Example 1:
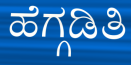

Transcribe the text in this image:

ಹೆಗ್ಗಡಿತಿ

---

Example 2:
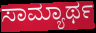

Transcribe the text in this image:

ಸಾಮ್ಯಾರ್ಥ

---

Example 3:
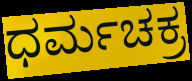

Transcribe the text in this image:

ಧರ್ಮಚಕ್ರ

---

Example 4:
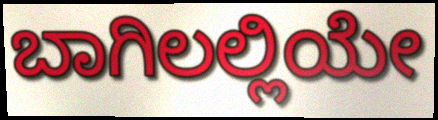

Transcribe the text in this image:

ಬಾಗಿಲಲ್ಲಿಯೇ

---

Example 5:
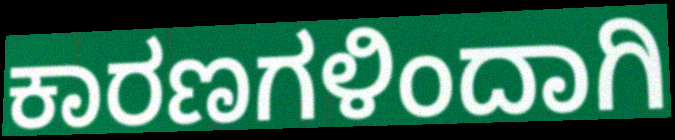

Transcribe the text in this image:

ಕಾರಣಗಳಿಂದಾಗಿ